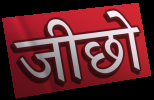
जीछो